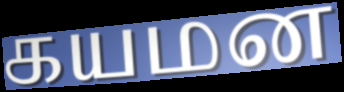
கயமன